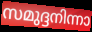
സമുദ്ദനിന്നാ